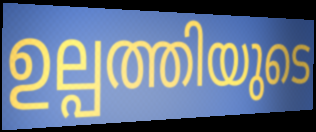
ഉല്പത്തിയുടെ